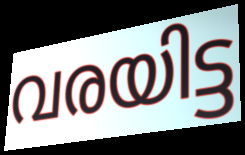
വരയിട്ട